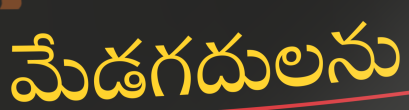
మేడగదులను